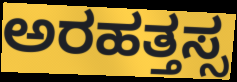
ಅರಹತ್ತಸ್ಸ